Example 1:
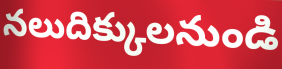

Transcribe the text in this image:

నలుదిక్కులనుండి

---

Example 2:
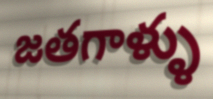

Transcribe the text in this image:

జతగాళ్ళు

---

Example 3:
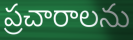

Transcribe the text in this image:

ప్రచారాలను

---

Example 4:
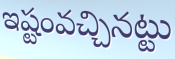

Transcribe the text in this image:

ఇష్టంవచ్చినట్టు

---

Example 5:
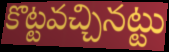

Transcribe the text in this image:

కొట్టవచ్చినట్టు